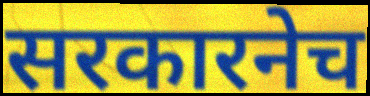
सरकारनेच